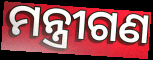
ମନ୍ତ୍ରୀଗଣ